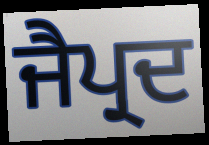
ਜੈਪ੍ਰਦ